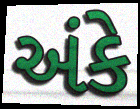
અંકે